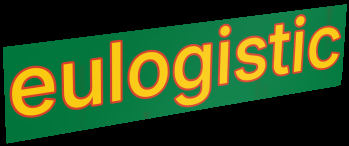
eulogistic